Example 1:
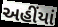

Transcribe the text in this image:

અહીંયાં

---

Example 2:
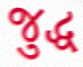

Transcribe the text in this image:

જુદ્ધ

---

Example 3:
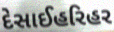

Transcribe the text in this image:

દેસાઈહરિહર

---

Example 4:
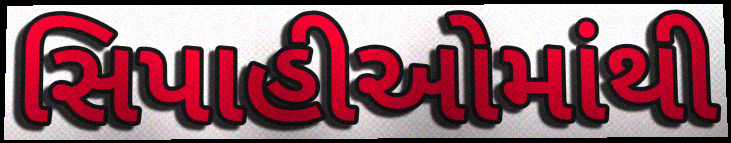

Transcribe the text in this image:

સિપાહીઓમાંથી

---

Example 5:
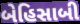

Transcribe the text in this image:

બેહિસાબી